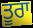
ਤੂਰਾ